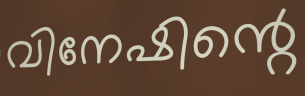
വിനേഷിന്റെ